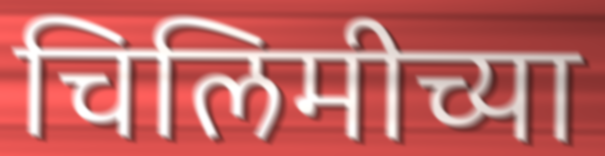
चिलिमीच्या